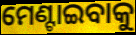
ମେଣ୍ଟାଇବାକୁ